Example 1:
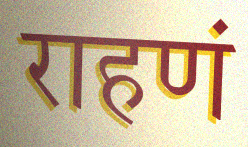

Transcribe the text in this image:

राहणं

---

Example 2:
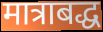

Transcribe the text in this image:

मात्राबद्ध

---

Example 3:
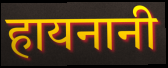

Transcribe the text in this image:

हायनानी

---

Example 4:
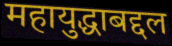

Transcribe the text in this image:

महायुद्धाबद्दल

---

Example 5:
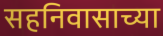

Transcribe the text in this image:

सहनिवासाच्या